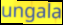
ungala